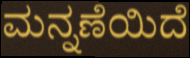
ಮನ್ನಣೆಯಿದೆ